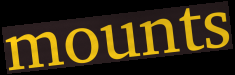
mounts